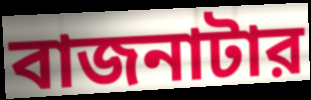
বাজনাটার